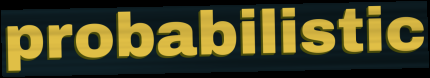
probabilistic